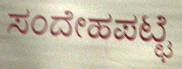
ಸಂದೇಹಪಟ್ಟೆ